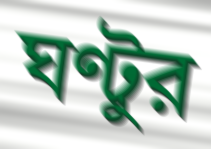
ঘণ্টুর